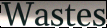
Wastes